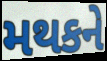
મથકને